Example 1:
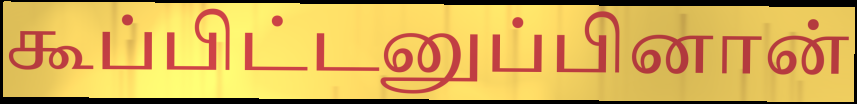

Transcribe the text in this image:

கூப்பிட்டனுப்பினான்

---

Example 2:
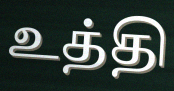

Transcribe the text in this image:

உத்தி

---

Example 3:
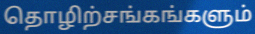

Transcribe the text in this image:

தொழிற்சங்கங்களும்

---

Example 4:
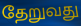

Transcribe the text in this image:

தேறுவது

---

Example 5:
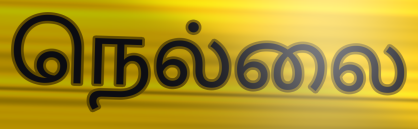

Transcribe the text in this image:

நெல்லை